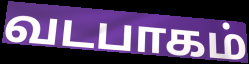
வடபாகம்